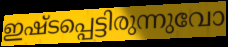
ഇഷ്ടപ്പെട്ടിരുന്നുവോ